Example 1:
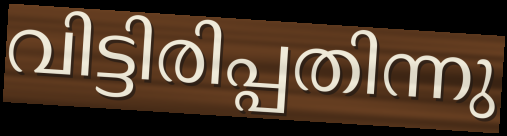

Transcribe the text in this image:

വിട്ടിരിപ്പതിന്നു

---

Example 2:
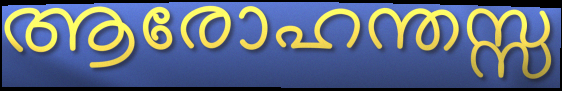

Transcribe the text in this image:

ആരോഹന്തസ്സ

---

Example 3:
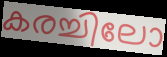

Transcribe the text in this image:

കരച്ചിലോ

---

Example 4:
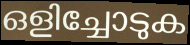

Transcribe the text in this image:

ഒളിച്ചോടുക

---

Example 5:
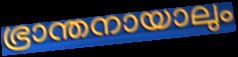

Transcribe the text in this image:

ഭ്രാന്തനായാലും